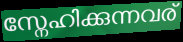
സ്നേഹിക്കുന്നവര്